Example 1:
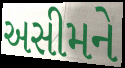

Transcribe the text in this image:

અસીમને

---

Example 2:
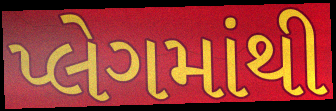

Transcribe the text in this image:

પ્લેગમાંથી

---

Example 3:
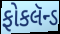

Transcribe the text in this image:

ફોકલૅન્ડ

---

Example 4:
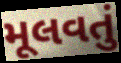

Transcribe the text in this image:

મૂલવતું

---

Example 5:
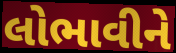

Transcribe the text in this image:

લોભાવીને